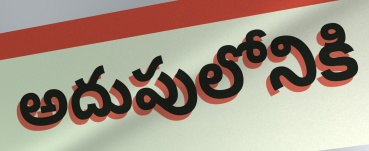
అదుపులోనికి